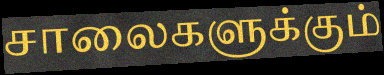
சாலைகளுக்கும்